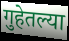
गुहेतल्या